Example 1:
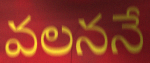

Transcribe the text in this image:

వలననే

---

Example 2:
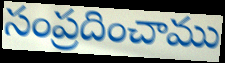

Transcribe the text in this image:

సంప్రదించాము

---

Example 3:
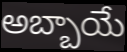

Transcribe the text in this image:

అబ్బాయే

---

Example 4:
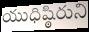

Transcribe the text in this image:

యుధిష్ఠిరుని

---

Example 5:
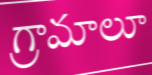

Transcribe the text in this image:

గ్రామాలూ